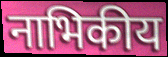
नाभिकीय